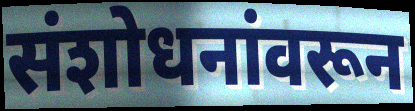
संशोधनांवरून